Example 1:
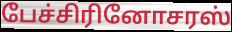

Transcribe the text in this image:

பேச்சிரினோசரஸ்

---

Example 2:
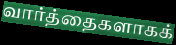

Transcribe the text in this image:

வார்த்தைகளாகக்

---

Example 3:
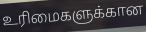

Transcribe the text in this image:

உரிமைகளுக்கான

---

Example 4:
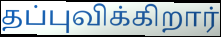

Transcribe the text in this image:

தப்புவிக்கிறார்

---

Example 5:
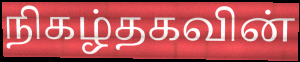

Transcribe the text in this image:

நிகழ்தகவின்